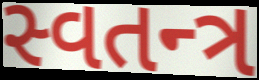
સ્વતન્ત્ર